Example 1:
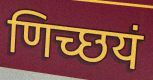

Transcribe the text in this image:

णिच्छयं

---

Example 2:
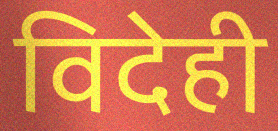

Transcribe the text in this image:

विदेही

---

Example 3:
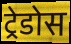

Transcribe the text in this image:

ट्रेडोस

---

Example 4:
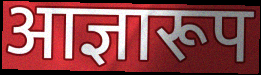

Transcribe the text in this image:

आज्ञारूप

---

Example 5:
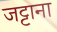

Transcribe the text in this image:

जट्टाना